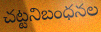
చట్టనిబంధనల